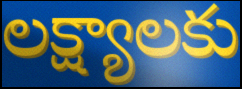
లక్ష్యాలకు